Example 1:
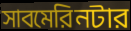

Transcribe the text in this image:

সাবমেরিনটার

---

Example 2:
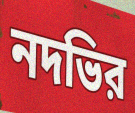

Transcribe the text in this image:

নদভির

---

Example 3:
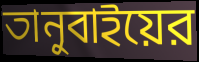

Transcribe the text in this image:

তানুবাইয়ের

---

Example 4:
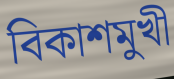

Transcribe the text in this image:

বিকাশমুখী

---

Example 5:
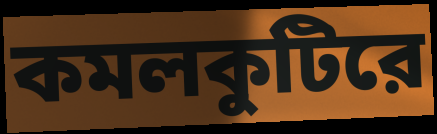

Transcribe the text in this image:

কমলকুটিরে